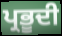
ਪ੍ਰਭੂਦੀ